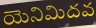
యెనిమిదవ